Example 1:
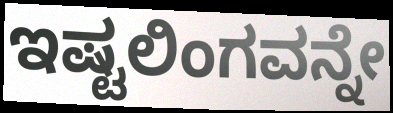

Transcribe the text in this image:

ಇಷ್ಟಲಿಂಗವನ್ನೇ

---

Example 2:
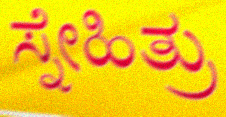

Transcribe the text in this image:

ಸ್ನೇಹಿತ್ರು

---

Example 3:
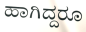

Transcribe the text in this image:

ಹಾಗಿದ್ದರೂ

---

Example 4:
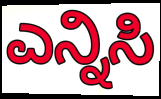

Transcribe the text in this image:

ಎನ್ನಿಸಿ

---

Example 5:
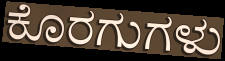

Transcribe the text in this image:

ಕೊರಗುಗಳು